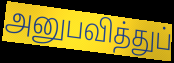
அனுபவித்துப்